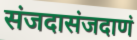
संजदासंजदाणं